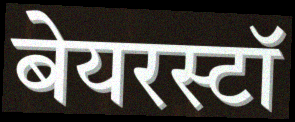
बेयरस्टॉ